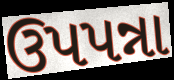
ઉપપન્ના